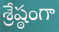
శ్రేష్ఠంగా